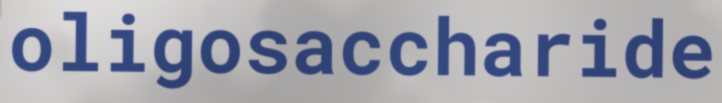
oligosaccharide